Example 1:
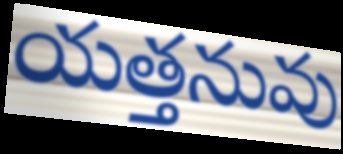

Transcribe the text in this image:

యత్తనువు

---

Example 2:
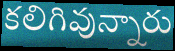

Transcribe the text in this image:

కలిగివున్నారు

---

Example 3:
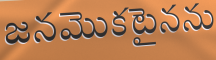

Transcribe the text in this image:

జనమొకటైనను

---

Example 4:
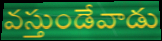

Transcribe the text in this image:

వస్తుండేవాడు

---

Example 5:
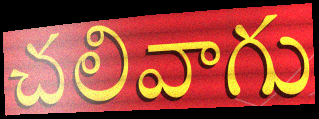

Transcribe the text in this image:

చలివాగు